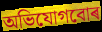
অভিযোগবোৰ